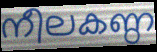
നീലകണ്ഠ